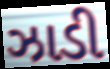
ઝાડી